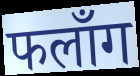
फलाँग